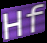
Hf